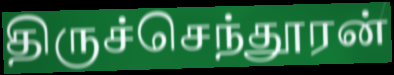
திருச்செந்தூரன்